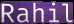
Rahil